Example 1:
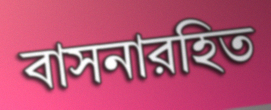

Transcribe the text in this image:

বাসনারহিত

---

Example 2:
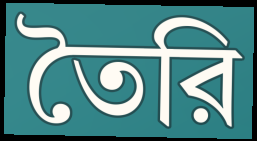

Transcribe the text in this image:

তৈরি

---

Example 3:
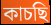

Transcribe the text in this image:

কাচছি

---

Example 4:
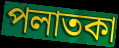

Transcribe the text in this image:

পলাতকা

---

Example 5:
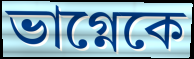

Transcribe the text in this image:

ভাগ্নেকে